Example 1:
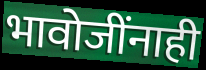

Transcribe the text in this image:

भावोजींनाही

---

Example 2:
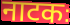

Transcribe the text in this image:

नाटकः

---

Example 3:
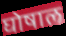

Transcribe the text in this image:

घोषाल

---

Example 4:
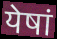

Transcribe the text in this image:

येषां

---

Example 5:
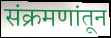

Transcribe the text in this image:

संक्रमणांतून